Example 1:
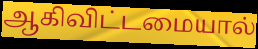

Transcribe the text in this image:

ஆகிவிட்டமையால்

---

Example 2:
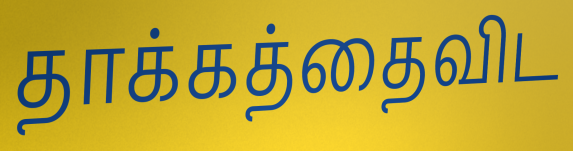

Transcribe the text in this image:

தாக்கத்தைவிட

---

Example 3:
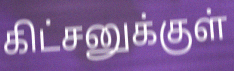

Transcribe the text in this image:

கிட்சனுக்குள்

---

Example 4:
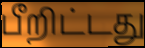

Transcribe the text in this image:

பீறிட்டது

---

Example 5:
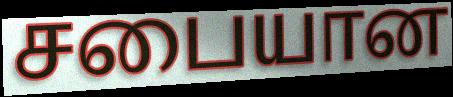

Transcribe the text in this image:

சபையான